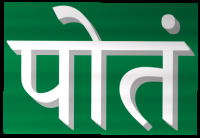
पोतं